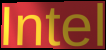
Intel